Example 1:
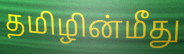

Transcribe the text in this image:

தமிழின்மீது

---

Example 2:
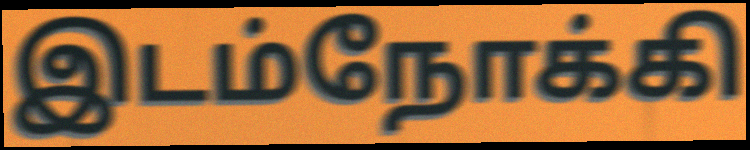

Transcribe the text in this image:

இடம்நோக்கி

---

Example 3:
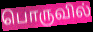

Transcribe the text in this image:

பொருவில்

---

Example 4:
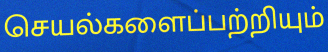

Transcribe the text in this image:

செயல்களைப்பற்றியும்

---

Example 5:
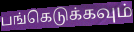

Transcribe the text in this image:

பங்கெடுக்கவும்